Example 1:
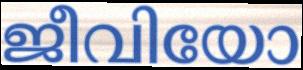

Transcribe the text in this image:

ജീവിയോ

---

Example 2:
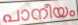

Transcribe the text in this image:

പാനീയം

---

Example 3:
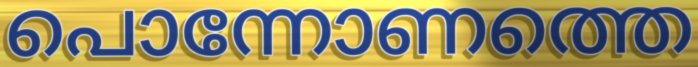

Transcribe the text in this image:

പൊന്നോണത്തെ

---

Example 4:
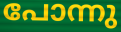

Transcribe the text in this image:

പോന്നു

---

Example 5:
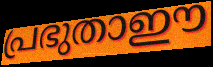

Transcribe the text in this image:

പ്രഭുതാഈ